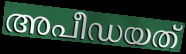
അപീഡയത്